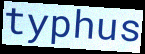
typhus